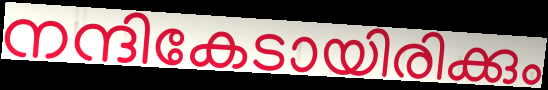
നന്ദികേടായിരിക്കും